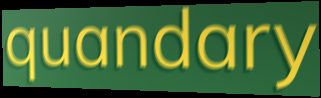
quandary